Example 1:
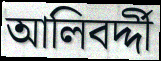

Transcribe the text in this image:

আলিবর্দ্দী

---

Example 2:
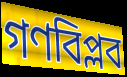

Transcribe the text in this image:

গণবিপ্লব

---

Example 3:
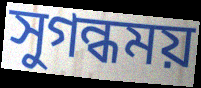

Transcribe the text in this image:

সুগন্ধময়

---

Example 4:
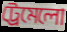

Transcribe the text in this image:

ট্রেমেলো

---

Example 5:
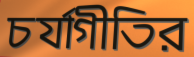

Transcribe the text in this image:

চর্যাগীতির